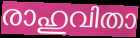
രാഹുവിതാ